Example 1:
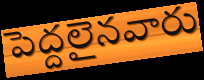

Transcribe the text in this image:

పెద్దలైనవారు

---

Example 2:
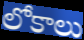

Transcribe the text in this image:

లోకాలు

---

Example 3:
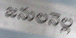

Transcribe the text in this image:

జనులనెల్ల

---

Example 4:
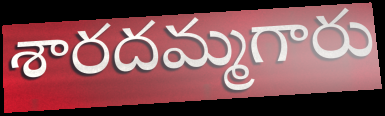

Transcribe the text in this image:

శారదమ్మగారు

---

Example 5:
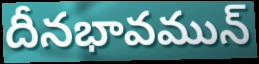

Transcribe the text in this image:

దీనభావమున్